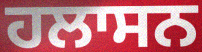
ਹਲਾਸਨ